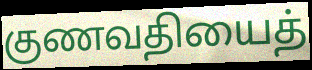
குணவதியைத்